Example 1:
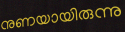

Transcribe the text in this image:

നുണയായിരുന്നു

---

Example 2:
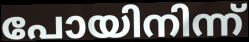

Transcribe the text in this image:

പോയിനിന്ന്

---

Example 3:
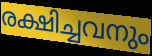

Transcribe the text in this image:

രക്ഷിച്ചവനും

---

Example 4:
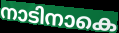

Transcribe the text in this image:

നാടിനാകെ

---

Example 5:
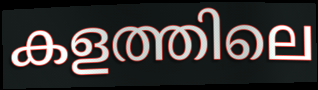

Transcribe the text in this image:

കളത്തിലെ